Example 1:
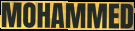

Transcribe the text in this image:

MOHAMMED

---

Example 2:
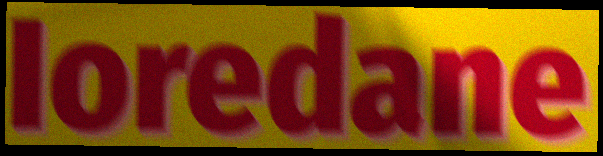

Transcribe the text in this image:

Ioredane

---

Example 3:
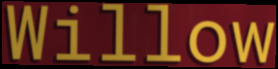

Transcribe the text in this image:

Willow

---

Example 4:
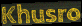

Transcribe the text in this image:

Khusro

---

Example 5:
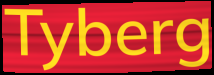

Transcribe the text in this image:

Tyberg